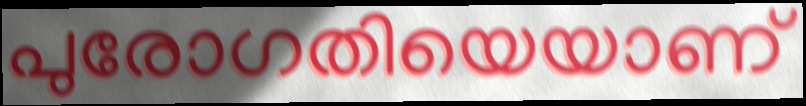
പുരോഗതിയെയാണ്